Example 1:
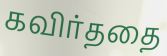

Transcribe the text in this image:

கவிர்ததை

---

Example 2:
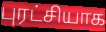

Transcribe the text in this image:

புரட்சியாக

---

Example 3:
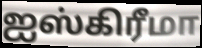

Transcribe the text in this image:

ஐஸ்கிரீமா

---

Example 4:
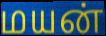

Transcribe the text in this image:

மயன்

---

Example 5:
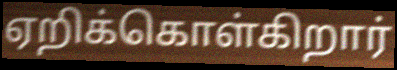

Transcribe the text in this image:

ஏறிக்கொள்கிறார்